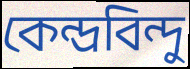
কেন্দ্রবিন্দু